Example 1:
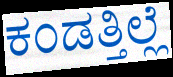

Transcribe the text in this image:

ಕಂಡತ್ತಿಲ್ಲೆ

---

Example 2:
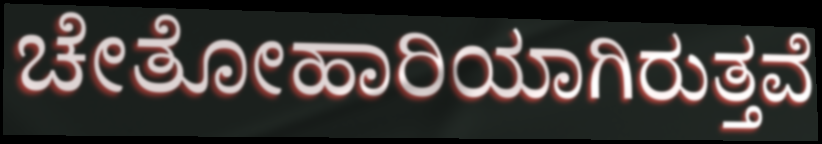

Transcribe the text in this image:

ಚೇತೋಹಾರಿಯಾಗಿರುತ್ತವೆ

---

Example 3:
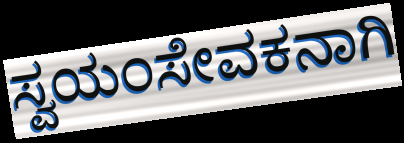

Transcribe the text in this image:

ಸ್ವಯಂಸೇವಕನಾಗಿ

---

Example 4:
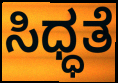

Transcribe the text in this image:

ಸಿಧ್ಧತೆ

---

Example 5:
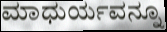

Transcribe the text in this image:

ಮಾಧುರ್ಯವನ್ನೂ